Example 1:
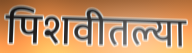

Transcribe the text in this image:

पिशवीतल्या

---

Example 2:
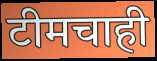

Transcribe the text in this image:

टीमचाही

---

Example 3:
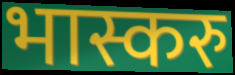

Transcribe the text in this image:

भास्करु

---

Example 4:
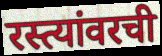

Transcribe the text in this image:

रस्त्यांवरची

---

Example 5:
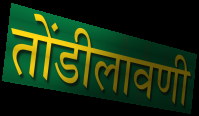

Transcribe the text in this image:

तोंडीलावणी